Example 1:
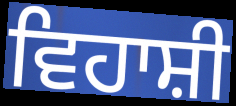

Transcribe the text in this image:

ਵਿਹਾਸ਼ੀ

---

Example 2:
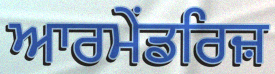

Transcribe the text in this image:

ਆਰਮੇਂਡਰਿਜ਼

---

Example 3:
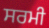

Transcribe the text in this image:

ਸਰਮੀ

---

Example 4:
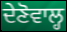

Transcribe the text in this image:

ਦੇਣੋਵਾਲ੍ਹ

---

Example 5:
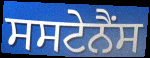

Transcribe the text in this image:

ਸਸਟੇਨੈਂਸ